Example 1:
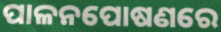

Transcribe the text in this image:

ପାଳନପୋଷଣରେ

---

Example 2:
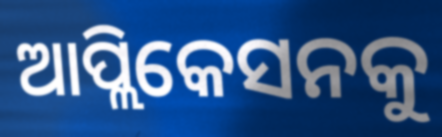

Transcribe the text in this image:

ଆପ୍ଲିକେସନକୁ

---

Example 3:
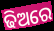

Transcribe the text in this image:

ଢିଅରେ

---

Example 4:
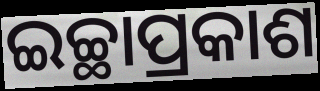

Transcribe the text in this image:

ଇଚ୍ଛାପ୍ରକାଶ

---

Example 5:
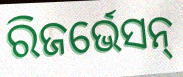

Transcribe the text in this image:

ରିଜର୍ଭେସନ୍